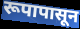
रूपापासून